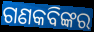
ଗଣକବିଙ୍କର